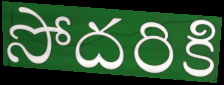
సోదరికి